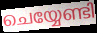
ചെയ്യേണ്ടി